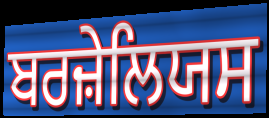
ਬਰਜ਼ੇਲਿਯਸ